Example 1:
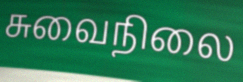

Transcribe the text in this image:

சுவைநிலை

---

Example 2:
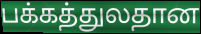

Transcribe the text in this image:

பக்கத்துலதான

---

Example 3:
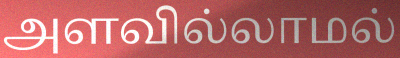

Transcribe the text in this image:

அளவில்லாமல்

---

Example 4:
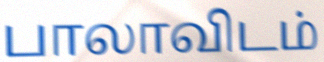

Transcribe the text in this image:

பாலாவிடம்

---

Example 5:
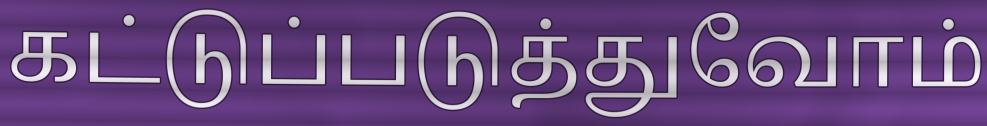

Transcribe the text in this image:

கட்டுப்படுத்துவோம்